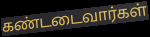
கண்டடைவார்கள்